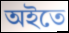
অইতে